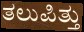
ತಲುಪಿತ್ತು